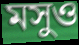
মসুও